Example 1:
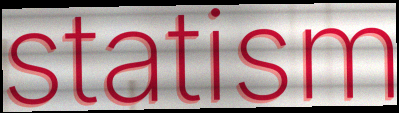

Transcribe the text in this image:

statism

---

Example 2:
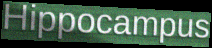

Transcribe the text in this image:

Hippocampus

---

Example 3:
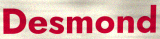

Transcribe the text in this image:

Desmond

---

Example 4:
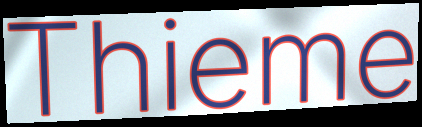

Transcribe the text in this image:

Thieme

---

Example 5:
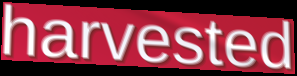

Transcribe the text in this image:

harvested